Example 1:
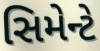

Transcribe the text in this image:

સિમેન્ટે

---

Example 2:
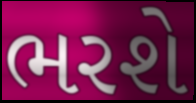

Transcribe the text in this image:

ભરશે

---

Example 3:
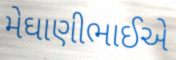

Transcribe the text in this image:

મેઘાણીભાઈએ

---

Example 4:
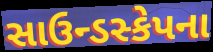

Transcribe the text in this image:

સાઉન્ડસ્કેપના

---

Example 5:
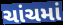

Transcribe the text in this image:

ચાંચમાં